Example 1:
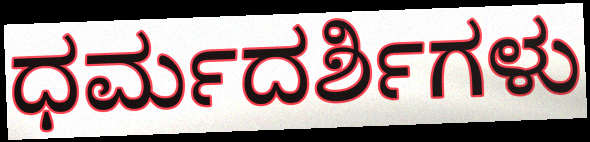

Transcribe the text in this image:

ಧರ್ಮದರ್ಶಿಗಳು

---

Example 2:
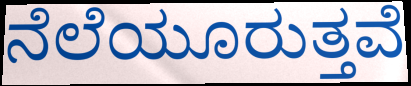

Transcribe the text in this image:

ನೆಲೆಯೂರುತ್ತವೆ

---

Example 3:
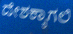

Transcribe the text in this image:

ದೇಶಕ್ಕಾಗಲಿ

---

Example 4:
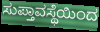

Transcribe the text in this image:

ಸುಪ್ತಾವಸ್ಥೆಯಿಂದ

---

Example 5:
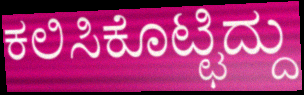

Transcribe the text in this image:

ಕಲಿಸಿಕೊಟ್ಟಿದ್ದು